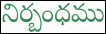
నిర్బంధము